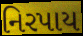
નિરપાય